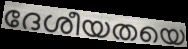
ദേശീയതയെ